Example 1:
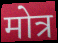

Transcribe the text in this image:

मोत्र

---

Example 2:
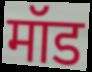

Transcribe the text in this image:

मॉड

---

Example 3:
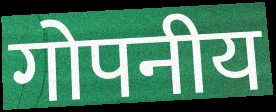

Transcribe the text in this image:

गोपनीय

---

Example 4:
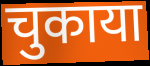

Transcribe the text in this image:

चुकाया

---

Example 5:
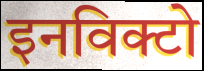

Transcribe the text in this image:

इनविक्टो